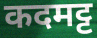
कदमट्ट